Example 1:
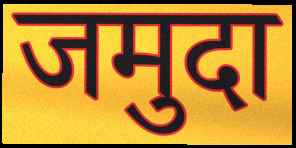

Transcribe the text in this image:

जमुदा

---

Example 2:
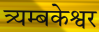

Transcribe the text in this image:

त्र्यम्बकेश्वर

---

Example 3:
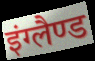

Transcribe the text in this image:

इंग्लैण्ड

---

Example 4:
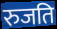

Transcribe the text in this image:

रुजति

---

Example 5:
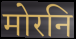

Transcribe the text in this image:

मोरनि